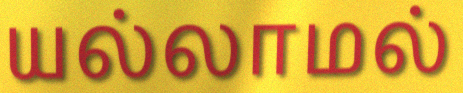
யல்லாமல்